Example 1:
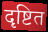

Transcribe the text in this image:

दृष्टित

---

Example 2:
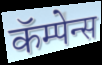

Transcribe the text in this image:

कॅम्पेन्स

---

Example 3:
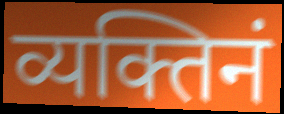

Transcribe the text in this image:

व्यक्तिनं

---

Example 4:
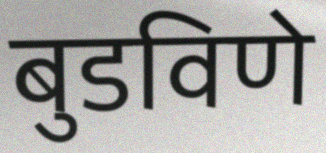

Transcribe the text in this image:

बुडविणे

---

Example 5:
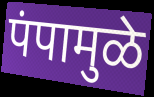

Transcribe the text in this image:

पंपामुळे